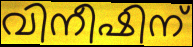
വിനീഷിന്